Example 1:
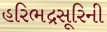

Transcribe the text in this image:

હરિભદ્રસૂરિની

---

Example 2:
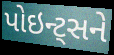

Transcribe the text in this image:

પોઇન્ટ્સને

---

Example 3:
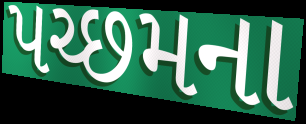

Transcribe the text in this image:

પચ્છમના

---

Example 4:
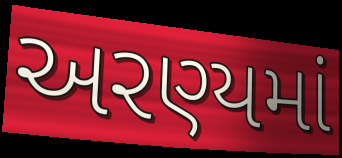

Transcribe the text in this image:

અરણ્યમાં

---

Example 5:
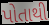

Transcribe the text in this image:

પોતાથી